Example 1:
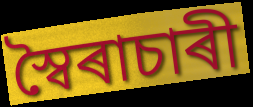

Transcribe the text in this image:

স্বৈৰাচাৰী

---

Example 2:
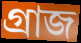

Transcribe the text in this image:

গ্ৰাজ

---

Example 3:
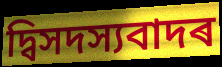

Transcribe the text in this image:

দ্বিসদস্যবাদৰ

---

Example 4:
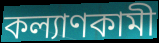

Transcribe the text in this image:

কল্যাণকামী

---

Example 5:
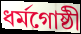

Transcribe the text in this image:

ধৰ্মগোষ্ঠী